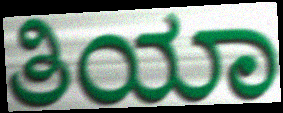
ತಿಯಾ